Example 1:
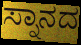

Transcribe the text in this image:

ಸ್ನಾನದ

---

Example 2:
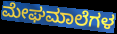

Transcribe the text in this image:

ಮೇಘಮಾಲೆಗಳ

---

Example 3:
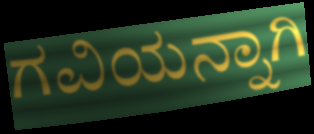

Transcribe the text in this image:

ಗವಿಯನ್ನಾಗಿ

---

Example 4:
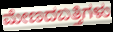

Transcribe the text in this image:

ಮೇಣದಬತ್ತಿಗಳು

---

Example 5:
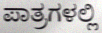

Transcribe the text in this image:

ಪಾತ್ರಗಳಲ್ಲಿ